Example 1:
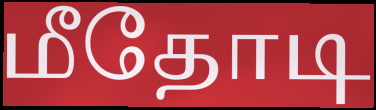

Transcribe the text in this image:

மீதோடி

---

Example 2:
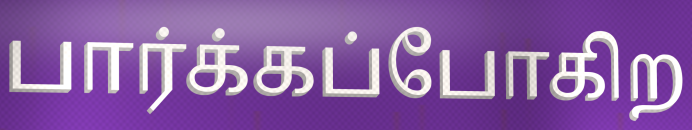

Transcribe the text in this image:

பார்க்கப்போகிற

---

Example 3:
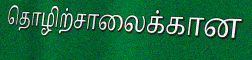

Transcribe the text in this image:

தொழிற்சாலைக்கான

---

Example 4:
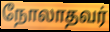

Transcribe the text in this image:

நோலாதவர்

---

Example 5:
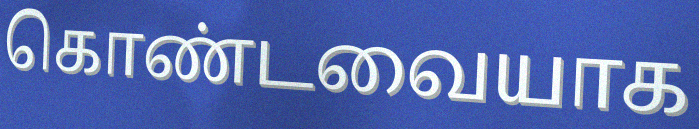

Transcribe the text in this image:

கொண்டவையாக